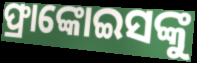
ଫ୍ରାଙ୍କୋଇସଙ୍କୁ